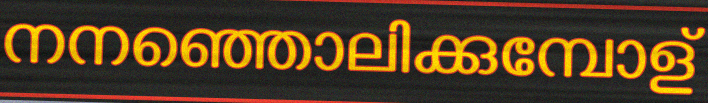
നനഞ്ഞൊലിക്കുമ്പോള്